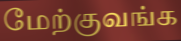
மேற்குவங்க